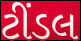
ટીંડલ